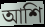
আশি